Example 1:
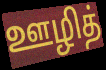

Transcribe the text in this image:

ஊழித்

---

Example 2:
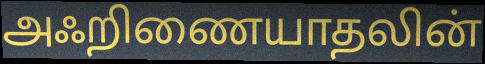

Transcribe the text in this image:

அஃறிணையாதலின்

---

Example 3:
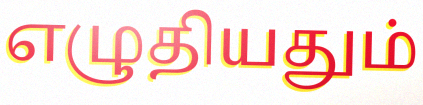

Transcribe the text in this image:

எழுதியதும்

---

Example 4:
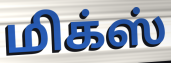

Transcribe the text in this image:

மிக்ஸ்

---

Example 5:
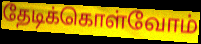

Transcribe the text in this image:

தேடிக்கொள்வோம்